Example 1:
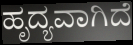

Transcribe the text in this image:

ಹೃದ್ಯವಾಗಿದೆ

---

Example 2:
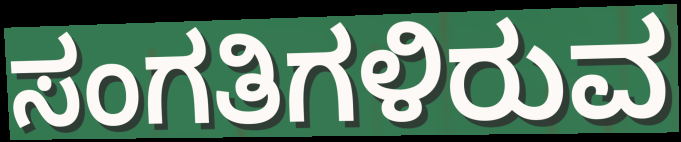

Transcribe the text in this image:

ಸಂಗತಿಗಳಿರುವ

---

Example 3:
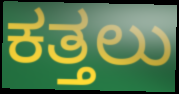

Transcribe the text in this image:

ಕತ್ತಲು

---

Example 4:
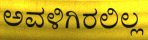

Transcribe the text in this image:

ಅವಳಿಗಿರಲಿಲ್ಲ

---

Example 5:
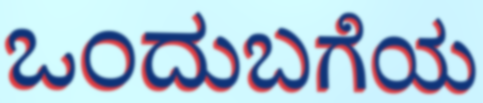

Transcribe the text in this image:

ಒಂದುಬಗೆಯ